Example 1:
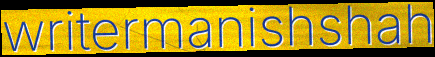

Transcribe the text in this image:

writermanishshah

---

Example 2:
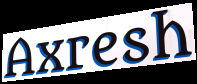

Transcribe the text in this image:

Axresh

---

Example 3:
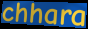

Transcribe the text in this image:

chhara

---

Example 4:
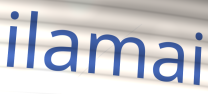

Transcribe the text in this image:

ilamai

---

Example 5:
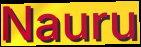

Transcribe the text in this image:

Nauru